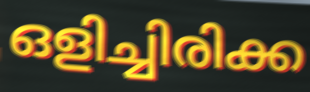
ഒളിച്ചിരിക്ക